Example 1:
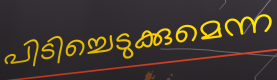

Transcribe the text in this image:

പിടിച്ചെടുക്കുമെന്ന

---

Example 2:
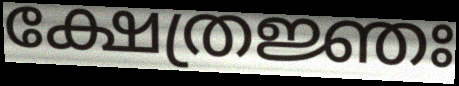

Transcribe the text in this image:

ക്ഷേത്രജ്ഞഃ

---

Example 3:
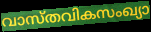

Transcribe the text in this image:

വാസ്തവികസംഖ്യാ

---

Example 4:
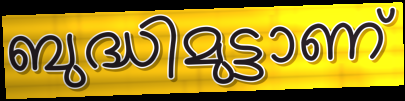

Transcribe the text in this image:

ബുദ്ധിമുട്ടാണ്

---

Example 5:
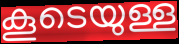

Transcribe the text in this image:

കൂടെയുള്ള